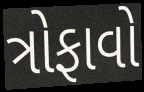
ત્રોફાવો